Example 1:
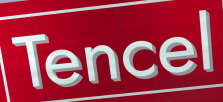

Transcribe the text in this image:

Tencel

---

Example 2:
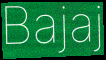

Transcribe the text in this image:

Bajaj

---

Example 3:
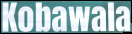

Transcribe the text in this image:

Kobawala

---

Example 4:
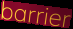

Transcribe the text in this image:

barrier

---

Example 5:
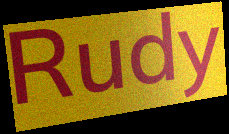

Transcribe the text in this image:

Rudy